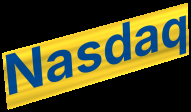
Nasdaq